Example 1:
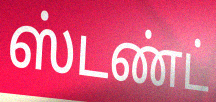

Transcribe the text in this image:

ஸ்டண்ட்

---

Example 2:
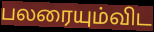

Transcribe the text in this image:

பலரையும்விட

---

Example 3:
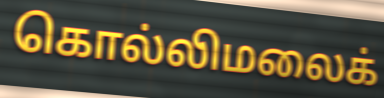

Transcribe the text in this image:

கொல்லிமலைக்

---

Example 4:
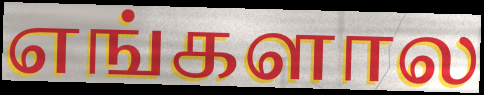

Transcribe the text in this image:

எங்களால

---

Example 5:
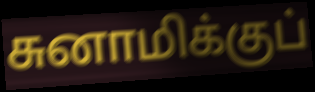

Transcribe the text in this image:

சுனாமிக்குப்